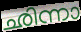
ഛിന്നാ